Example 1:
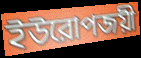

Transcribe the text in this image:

ইউরোপজয়ী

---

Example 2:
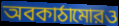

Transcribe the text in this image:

অবকাঠামোরও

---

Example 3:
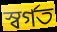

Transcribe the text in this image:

স্বর্গত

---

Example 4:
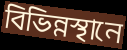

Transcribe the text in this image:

বিভিন্নস্থানে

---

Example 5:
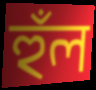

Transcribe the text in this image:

হুঁল